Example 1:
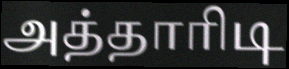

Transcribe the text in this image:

அத்தாரிடி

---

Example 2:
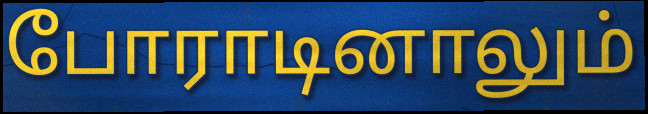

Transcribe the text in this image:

போராடினாலும்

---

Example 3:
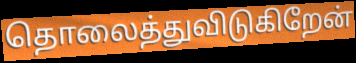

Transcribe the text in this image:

தொலைத்துவிடுகிறேன்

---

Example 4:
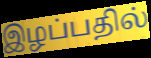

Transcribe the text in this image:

இழப்பதில்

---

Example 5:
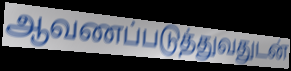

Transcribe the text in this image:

ஆவணப்படுத்துவதுடன்